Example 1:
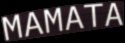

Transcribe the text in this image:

MAMATA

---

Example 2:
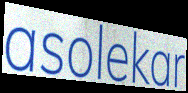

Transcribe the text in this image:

asolekar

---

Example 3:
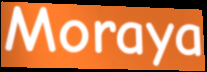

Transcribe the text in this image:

Moraya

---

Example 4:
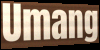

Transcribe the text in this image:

Umang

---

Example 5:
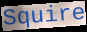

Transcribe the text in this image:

Squire